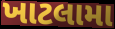
ખાટલામા